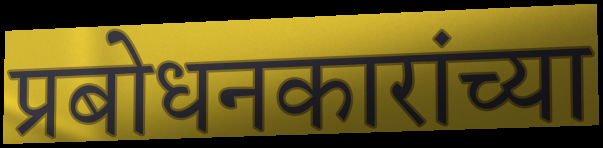
प्रबोधनकारांच्या